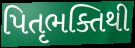
પિતૃભક્તિથી